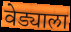
वेड्याला